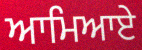
ਆਮਿਆਏ